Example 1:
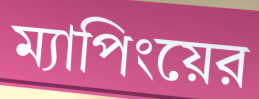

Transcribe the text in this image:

ম্যাপিংয়ের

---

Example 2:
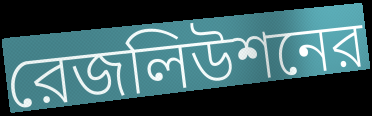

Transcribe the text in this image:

রেজলিউশনের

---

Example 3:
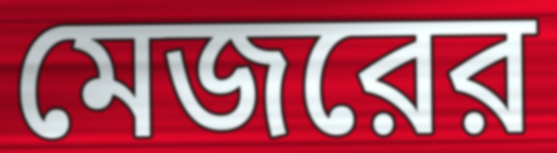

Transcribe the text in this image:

মেজরের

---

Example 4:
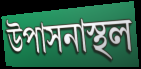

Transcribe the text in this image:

উপাসনাস্থল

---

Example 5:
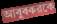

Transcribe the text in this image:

আবুবকরকে